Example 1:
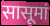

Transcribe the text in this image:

सासूमां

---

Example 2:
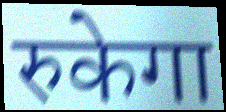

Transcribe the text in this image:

रुकेगा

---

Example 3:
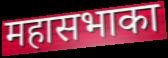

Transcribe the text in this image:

महासभाका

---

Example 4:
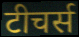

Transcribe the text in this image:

टीचर्स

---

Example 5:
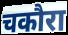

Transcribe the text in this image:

चकौरा